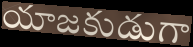
యాజకుడుగా